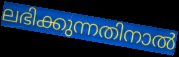
ലഭിക്കുന്നതിനാൽ